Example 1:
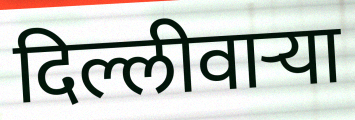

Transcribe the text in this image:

दिल्लीवाऱ्या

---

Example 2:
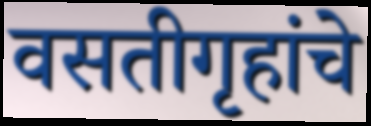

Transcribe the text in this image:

वसतीगृहांचे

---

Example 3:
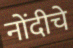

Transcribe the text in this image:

नोंदीचे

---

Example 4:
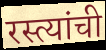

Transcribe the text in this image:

रस्त्यांची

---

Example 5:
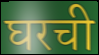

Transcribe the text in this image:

घरची